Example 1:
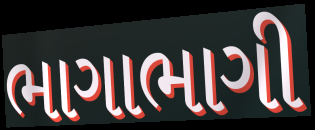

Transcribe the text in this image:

ભાગાભાગી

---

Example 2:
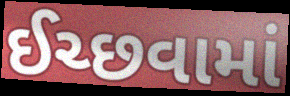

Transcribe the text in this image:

ઈચ્છવામાં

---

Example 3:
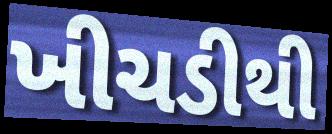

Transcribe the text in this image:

ખીચડીથી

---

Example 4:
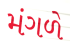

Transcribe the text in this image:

મંગળે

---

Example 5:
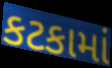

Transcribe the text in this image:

કટકામાં